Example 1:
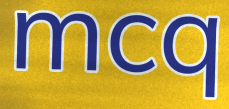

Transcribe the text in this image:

mcq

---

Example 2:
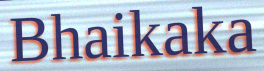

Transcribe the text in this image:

Bhaikaka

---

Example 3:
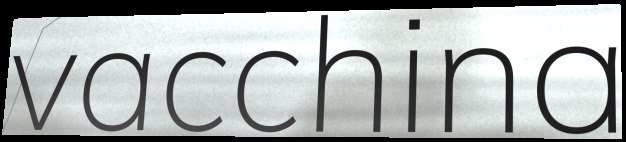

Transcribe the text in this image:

vacchina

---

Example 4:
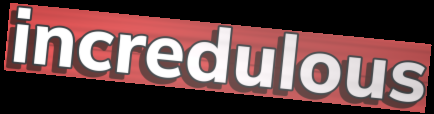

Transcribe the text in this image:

incredulous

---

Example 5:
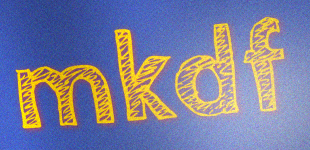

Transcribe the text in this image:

mkdf